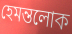
হেমন্তলোক